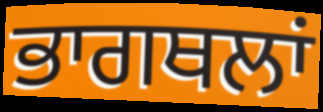
ਭਾਗਥਲਾਂ